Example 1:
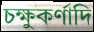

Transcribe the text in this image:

চক্ষুকর্ণাদি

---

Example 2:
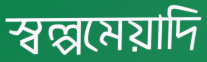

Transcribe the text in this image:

স্বল্পমেয়াদি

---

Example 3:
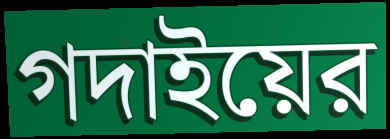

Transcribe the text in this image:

গদাইয়ের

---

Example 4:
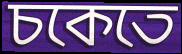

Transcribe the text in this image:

চকেতে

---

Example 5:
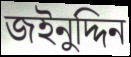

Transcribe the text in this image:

জইনুদ্দিন